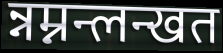
न्नम्नन्लन्खत